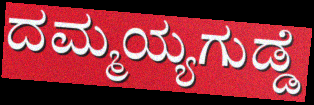
ದಮ್ಮಯ್ಯಗುಡ್ಡೆ